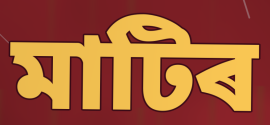
মাটিৰ